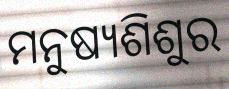
ମନୁଷ୍ୟଶିଶୁର